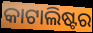
କାଟାଲିଷ୍ଟର